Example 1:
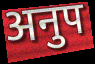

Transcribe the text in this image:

अनुप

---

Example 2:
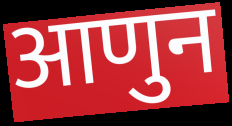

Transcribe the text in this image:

आणुन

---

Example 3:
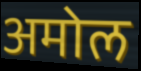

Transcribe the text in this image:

अमोल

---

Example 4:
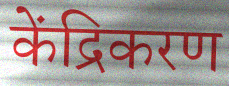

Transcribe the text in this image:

केंद्रिकरण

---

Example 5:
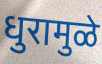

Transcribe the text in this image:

धुरामुळे